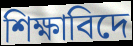
শিক্ষাবিদে